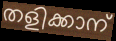
തളിക്കാന്